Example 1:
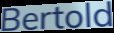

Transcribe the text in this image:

Bertold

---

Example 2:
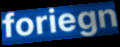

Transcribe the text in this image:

foriegn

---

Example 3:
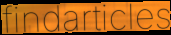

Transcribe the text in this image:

findarticles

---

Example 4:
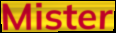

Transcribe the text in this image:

Mister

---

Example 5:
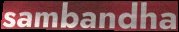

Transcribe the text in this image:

sambandha